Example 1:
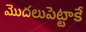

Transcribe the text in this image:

మొదలుపెట్టాకే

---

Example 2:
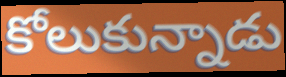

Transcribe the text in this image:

కోలుకున్నాడు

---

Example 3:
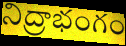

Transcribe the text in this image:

నిద్రాభంగం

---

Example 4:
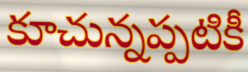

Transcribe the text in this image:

కూచున్నప్పటికీ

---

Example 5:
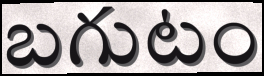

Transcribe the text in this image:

బగుటం